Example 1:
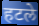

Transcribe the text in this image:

हटले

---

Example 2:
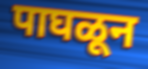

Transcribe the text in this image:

पाघळून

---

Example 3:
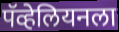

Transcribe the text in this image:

पॅव्हेलियनला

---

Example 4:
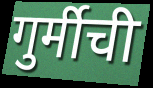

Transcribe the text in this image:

गुर्मीची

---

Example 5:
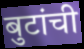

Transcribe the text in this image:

बुटांची